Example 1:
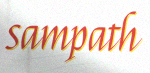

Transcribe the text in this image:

sampath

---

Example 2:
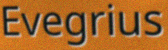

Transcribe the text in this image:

Evegrius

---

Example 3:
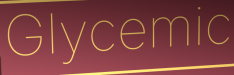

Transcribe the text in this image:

Glycemic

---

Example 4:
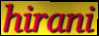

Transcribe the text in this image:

hirani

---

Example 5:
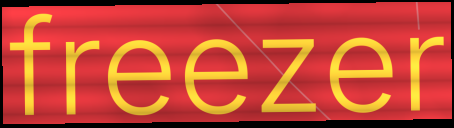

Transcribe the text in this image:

freezer